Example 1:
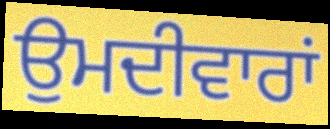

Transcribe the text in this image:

ਉਮਦੀਵਾਰਾਂ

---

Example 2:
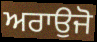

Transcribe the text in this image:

ਅਰਾਉਜੋ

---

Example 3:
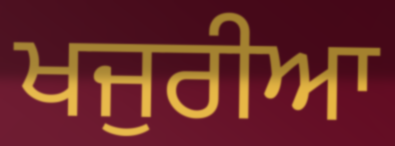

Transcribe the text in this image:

ਖਜੁਰੀਆ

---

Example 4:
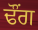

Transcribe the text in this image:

ਢੌਂਗ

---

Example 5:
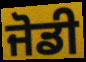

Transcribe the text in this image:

ਜੋਡੀ